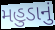
મહુડાનું